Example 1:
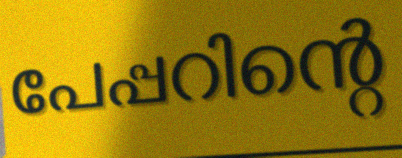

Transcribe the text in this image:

പേപ്പറിന്റെ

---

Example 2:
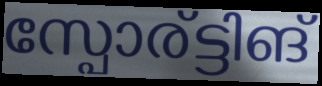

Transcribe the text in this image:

സ്പോര്ട്ടിങ്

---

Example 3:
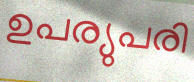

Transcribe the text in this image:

ഉപര്യുപരി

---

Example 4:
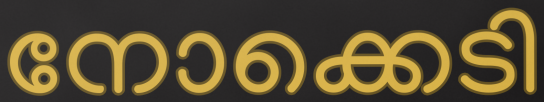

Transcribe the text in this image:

നോക്കെടി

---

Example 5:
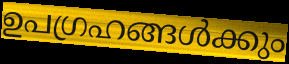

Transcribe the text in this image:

ഉപഗ്രഹങ്ങൾക്കും